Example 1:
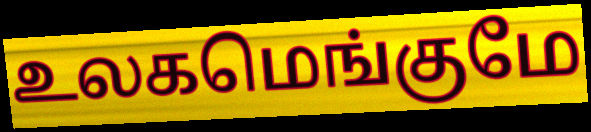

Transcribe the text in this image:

உலகமெங்குமே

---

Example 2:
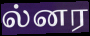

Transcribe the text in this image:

ல்னர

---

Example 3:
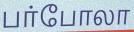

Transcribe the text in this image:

பர்போலா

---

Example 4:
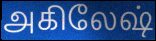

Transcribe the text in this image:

அகிலேஷ்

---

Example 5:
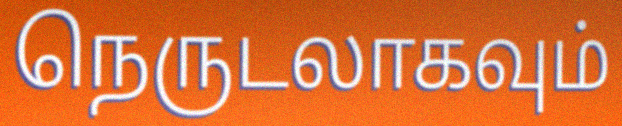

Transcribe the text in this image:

நெருடலாகவும்